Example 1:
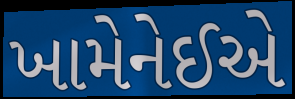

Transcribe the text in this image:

ખામેનેઈએ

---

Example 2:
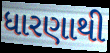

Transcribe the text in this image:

ધારણાથી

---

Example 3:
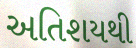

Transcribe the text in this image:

અતિશયથી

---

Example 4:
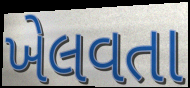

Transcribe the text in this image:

ખેલવતા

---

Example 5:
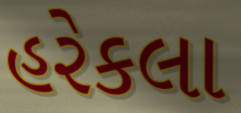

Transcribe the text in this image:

હરેકલા